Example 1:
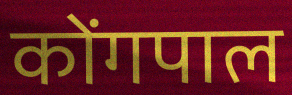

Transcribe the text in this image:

कोंगपाल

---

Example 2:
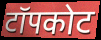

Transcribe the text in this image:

टॉपकोट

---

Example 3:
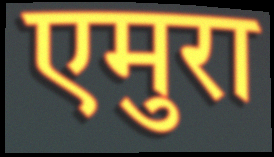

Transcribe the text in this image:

एमुरा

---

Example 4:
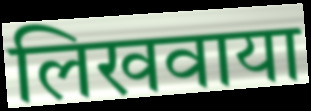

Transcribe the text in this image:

लिखवाया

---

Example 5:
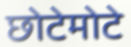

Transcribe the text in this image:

छोटेमोटे